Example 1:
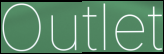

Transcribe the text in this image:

Outlet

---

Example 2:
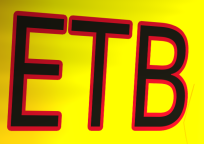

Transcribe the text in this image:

ETB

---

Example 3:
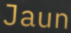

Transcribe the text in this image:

Jaun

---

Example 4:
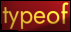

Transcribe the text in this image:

typeof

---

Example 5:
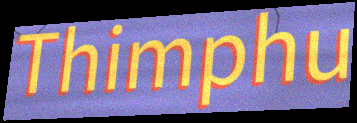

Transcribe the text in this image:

Thimphu